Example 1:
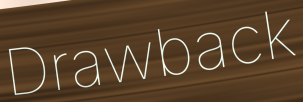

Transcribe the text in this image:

Drawback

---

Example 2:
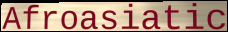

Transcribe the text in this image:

Afroasiatic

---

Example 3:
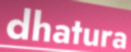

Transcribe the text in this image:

dhatura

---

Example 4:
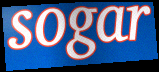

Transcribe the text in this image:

sogar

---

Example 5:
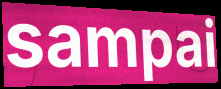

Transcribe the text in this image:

sampai